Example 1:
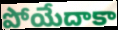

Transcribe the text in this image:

పోయేదాకా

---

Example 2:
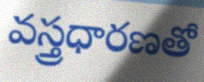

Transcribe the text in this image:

వస్త్రధారణతో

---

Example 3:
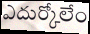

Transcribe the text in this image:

ఎదుర్కోలేం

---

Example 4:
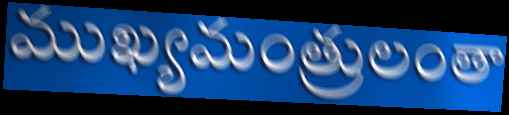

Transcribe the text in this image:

ముఖ్యమంత్రులంతా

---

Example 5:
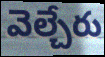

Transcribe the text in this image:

వెల్చేరు